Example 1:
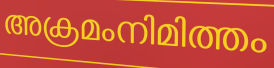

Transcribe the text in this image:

അക്രമംനിമിത്തം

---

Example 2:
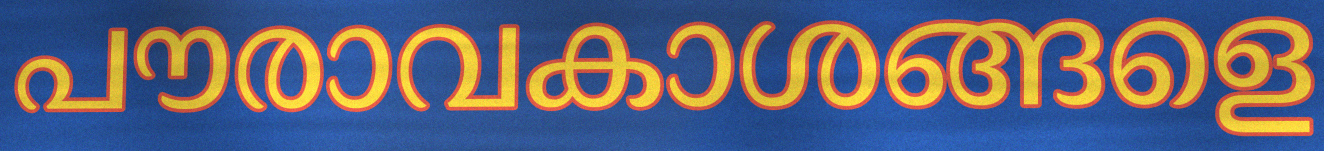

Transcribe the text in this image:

പൗരാവകാശങ്ങളെ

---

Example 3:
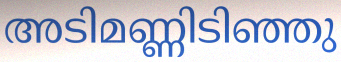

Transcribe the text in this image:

അടിമണ്ണിടിഞ്ഞു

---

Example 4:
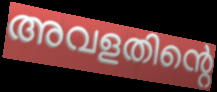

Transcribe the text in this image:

അവളതിന്റെ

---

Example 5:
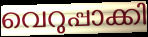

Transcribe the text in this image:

വെറുപ്പാക്കി